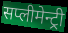
सप्लीमेन्ट्री